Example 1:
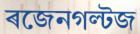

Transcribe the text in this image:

ৰজেনগল্টজ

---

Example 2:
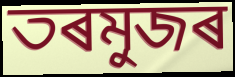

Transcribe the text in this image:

তৰমুজৰ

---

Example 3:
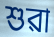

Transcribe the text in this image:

শুৱা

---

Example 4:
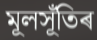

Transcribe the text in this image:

মূলসূঁতিৰ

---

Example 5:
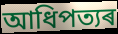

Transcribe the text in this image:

আধিপত্যৰ